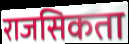
राजसिकता